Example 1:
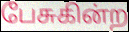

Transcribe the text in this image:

பேசுகின்ற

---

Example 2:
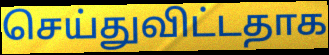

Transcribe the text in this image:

செய்துவிட்டதாக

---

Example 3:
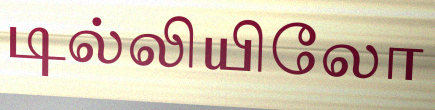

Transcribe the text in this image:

டில்லியிலோ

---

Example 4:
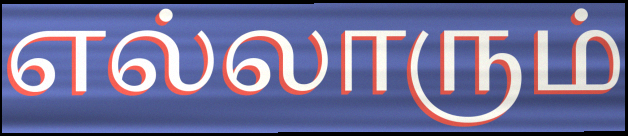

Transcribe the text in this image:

எல்லாரும்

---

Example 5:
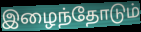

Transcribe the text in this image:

இழைந்தோடும்